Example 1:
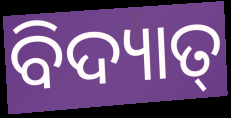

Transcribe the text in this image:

ବିଦ୍ୟାତ୍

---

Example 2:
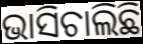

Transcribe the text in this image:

ଭାସିଚାଲିଛି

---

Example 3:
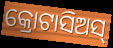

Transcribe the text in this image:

କ୍ରୋଟାସିଅସ୍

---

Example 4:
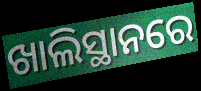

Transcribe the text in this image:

ଖାଲିସ୍ଥାନରେ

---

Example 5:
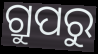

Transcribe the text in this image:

ଗ୍ରୁପରୁ